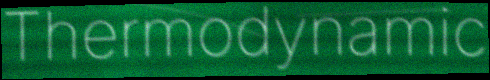
Thermodynamic